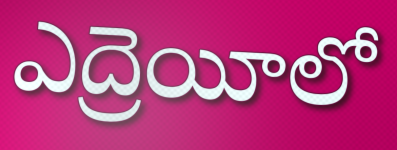
ఎద్రెయీలో